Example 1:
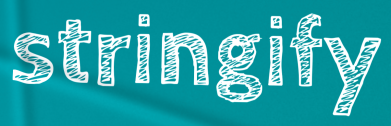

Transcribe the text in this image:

stringify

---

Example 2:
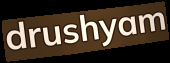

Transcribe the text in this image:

drushyam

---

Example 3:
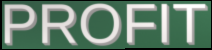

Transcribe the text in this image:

PROFIT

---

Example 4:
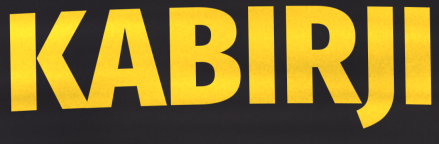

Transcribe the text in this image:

KABIRJI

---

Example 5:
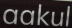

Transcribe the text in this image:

aakul